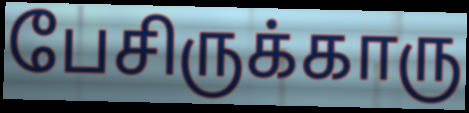
பேசிருக்காரு